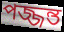
পজ্জন্ত